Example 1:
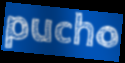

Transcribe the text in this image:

pucho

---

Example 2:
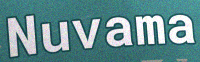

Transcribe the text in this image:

Nuvama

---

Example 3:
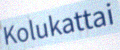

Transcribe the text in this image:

Kolukattai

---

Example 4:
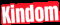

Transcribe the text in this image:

Kindom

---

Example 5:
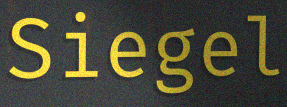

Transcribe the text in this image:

Siegel